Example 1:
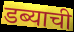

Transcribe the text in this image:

डब्याची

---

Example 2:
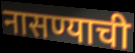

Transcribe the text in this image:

नासण्याची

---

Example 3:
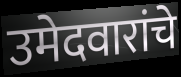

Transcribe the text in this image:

उमेदवारांचे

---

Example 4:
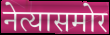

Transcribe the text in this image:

नेत्यासमोर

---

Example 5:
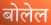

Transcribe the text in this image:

बोलेल